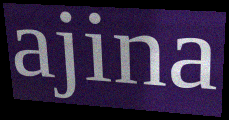
ajina